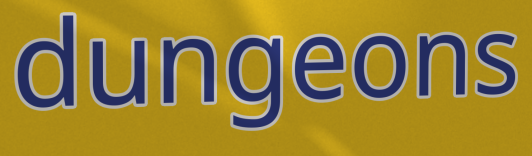
dungeons